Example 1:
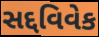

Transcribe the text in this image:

સદ્દવિવેક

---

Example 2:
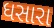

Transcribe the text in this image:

ધસારા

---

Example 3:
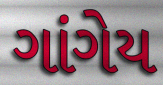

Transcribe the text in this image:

ગાંગેય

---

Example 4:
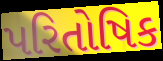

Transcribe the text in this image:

પરિતોષિક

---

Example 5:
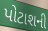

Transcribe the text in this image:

પોટાશની